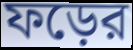
ফড়ের